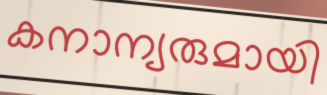
കനാന്യരുമായി